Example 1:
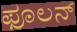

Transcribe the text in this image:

ಫೂಲನ್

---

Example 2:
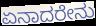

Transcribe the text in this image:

ಏನಾದರೇನು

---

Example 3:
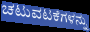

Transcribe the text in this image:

ಚಟುವಟಕೆಗಳನ್ನು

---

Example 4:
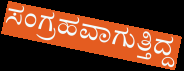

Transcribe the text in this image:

ಸಂಗ್ರಹವಾಗುತ್ತಿದ್ದ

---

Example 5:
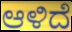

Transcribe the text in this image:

ಆಳಿದೆ